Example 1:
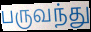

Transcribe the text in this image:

பருவந்து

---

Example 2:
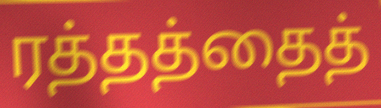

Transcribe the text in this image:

ரத்தத்தைத்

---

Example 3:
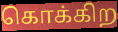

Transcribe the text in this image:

கொக்கிற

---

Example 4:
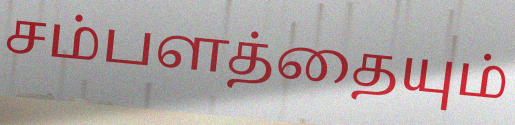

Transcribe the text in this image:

சம்பளத்தையும்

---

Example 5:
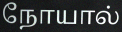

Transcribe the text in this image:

நோயால்